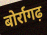
बोर्रागढ़